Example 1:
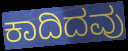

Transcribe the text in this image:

ಕಾದಿದವು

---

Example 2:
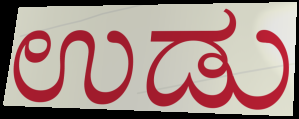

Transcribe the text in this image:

ಉಡು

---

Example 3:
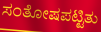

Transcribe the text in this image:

ಸಂತೋಷಪಟ್ಟಿತು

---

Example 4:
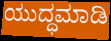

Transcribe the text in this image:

ಯುದ್ಧಮಾಡಿ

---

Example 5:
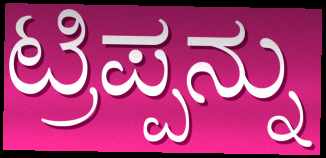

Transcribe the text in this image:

ಟ್ರಿಪ್ಪನ್ನು